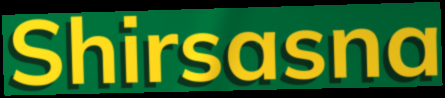
Shirsasna